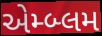
એમ્બ્લમ